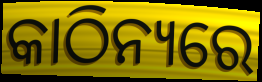
କାଠିନ୍ୟରେ